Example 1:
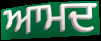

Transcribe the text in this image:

ਆਮਦ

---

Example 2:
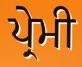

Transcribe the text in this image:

ਪ੍ਰੇਮੀ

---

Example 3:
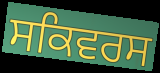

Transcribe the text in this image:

ਸਕਿਵਰਸ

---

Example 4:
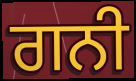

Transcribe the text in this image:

ਗਨੀ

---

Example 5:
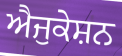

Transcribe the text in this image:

ਐਜੁਕੇਸ਼ਨ